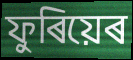
ফুৰিয়েৰ